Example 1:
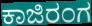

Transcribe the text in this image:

ಕಾಜಿರಂಗ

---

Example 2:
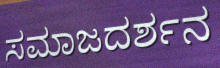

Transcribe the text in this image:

ಸಮಾಜದರ್ಶನ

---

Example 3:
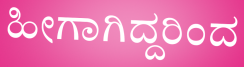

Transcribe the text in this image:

ಹೀಗಾಗಿದ್ದರಿಂದ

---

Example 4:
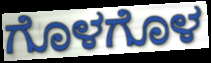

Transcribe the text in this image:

ಗೊಳಗೊಳ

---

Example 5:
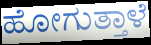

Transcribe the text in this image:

ಹೋಗುತ್ತಾಳೆ